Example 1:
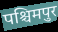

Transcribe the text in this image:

पश्चिमपुर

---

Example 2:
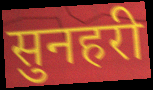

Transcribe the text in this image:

सुनहरी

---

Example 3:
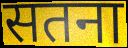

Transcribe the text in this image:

सतना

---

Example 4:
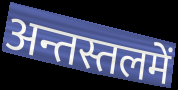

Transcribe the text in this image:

अन्तस्तलमें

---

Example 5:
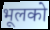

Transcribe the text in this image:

भूलको